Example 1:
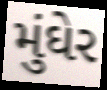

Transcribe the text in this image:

મુંઘેર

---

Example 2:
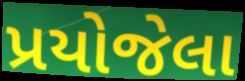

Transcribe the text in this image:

પ્રયોજેલા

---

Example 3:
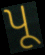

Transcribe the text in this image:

પૂ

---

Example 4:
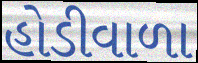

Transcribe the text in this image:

હોડીવાળા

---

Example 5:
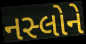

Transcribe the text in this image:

નસ્લોને